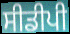
ਸੀਡੀਪੀ